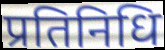
प्रतिनिधि